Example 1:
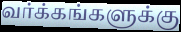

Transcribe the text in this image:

வர்க்கங்களுக்கு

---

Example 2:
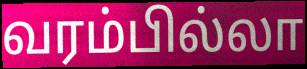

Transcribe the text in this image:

வரம்பில்லா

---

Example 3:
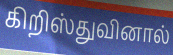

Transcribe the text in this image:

கிறிஸ்துவினால்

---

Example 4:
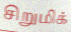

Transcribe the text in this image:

சிறுமிக்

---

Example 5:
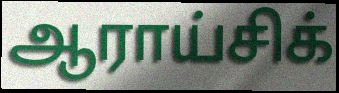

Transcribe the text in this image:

ஆராய்சிக்